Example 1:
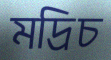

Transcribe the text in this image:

মদ্রিচ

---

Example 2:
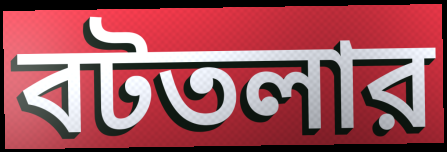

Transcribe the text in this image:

বটতলার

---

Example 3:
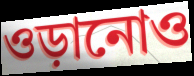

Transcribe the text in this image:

ওড়ানোও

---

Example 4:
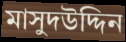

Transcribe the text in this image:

মাসুদউদ্দিন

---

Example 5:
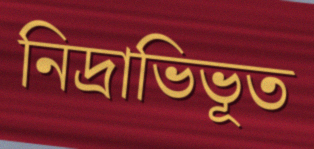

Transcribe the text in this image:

নিদ্রাভিভূত